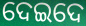
ଦେଇଦେ